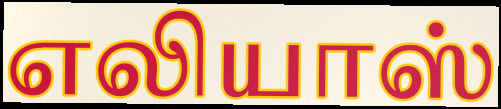
எலியாஸ்